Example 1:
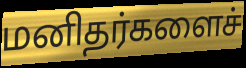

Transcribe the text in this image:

மனிதர்களைச்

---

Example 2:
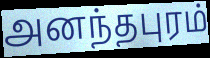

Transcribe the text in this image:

அனந்தபுரம்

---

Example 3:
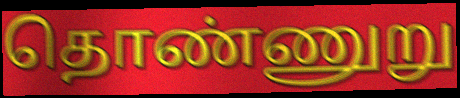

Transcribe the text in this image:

தொண்ணுறு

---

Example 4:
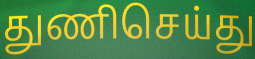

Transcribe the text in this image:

துணிசெய்து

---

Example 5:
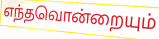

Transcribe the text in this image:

எந்தவொன்றையும்